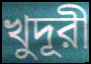
খুদূরী